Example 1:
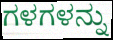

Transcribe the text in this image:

ಗಳಗಳನ್ನು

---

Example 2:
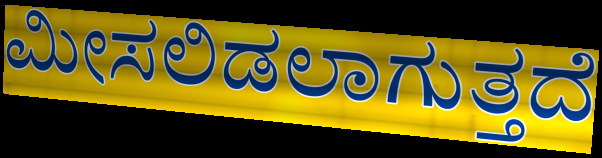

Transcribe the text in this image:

ಮೀಸಲಿಡಲಾಗುತ್ತದೆ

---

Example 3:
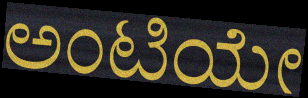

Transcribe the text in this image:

ಅಂಟಿಯೇ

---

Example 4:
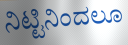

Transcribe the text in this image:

ನಿಟ್ಟಿನಿಂದಲೂ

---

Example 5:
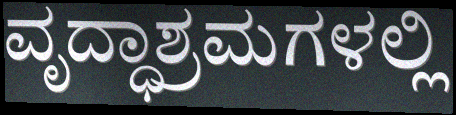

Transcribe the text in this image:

ವೃದ್ಧಾಶ್ರಮಗಳಲ್ಲಿ